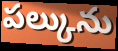
పల్కును